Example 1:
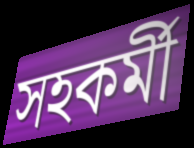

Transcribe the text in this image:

সহকর্মী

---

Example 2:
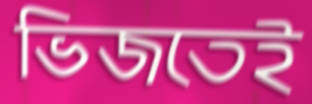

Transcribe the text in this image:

ভিজতেই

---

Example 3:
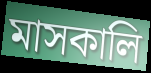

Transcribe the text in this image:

মাসকালি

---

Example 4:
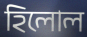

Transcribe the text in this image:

হিলোল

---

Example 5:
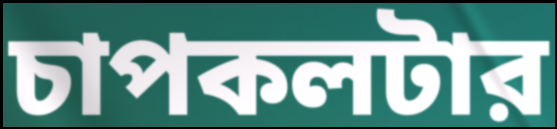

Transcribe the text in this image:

চাপকলটার